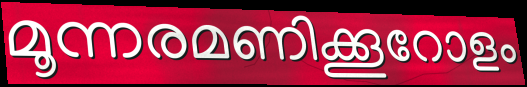
മൂന്നരമണിക്കൂറോളം